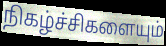
நிகழ்ச்சிகளையும்